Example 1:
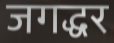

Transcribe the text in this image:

जगद्धर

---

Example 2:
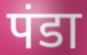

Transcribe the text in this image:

पंडा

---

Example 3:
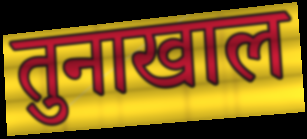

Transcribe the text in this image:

तुनाखाल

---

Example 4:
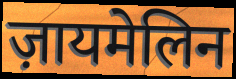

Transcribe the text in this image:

ज़ायमेलिन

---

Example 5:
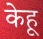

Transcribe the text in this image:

केहू